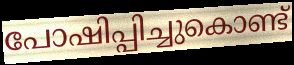
പോഷിപ്പിച്ചുകൊണ്ട്